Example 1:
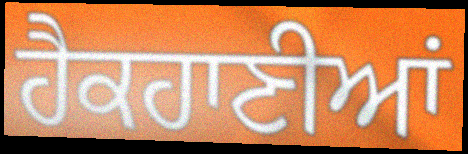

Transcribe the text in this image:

ਹੈਕਹਾਣੀਆਂ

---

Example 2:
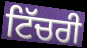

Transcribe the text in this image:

ਟਿੱਚਰੀ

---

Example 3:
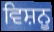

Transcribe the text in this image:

ਵਿਸ਼ਨੂ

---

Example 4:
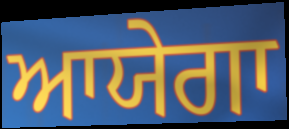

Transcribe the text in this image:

ਆਯੇਗਾ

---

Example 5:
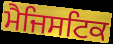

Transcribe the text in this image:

ਮੈਜਿਸਟਿਕ